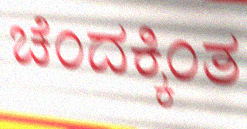
ಚೆಂದಕ್ಕಿಂತ